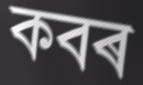
কবৰ